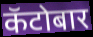
कॅटोबार